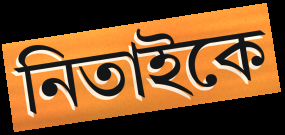
নিতাইকে